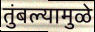
तुंबल्यामुळे